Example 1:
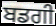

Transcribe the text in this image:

ਬਡਗੀ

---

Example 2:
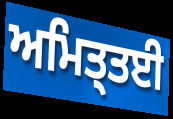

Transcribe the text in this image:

ਅਮਿਤ੍ਤਈ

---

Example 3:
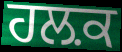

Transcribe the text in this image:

ਹਲ਼ਕ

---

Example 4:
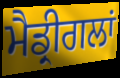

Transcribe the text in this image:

ਮੈਡ੍ਰੀਗਲਾਂ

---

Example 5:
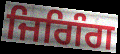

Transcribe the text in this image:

ਜਿਗਿੰਗ